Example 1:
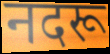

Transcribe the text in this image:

नदरू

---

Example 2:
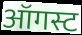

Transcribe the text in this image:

ऑगस्ट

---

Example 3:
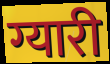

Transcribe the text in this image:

ग्यारी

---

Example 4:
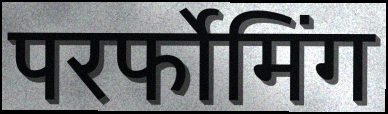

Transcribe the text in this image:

परर्फोमिंग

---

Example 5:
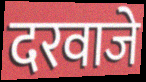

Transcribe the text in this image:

दरवाजे